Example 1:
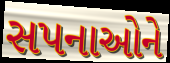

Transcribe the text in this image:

સપનાઓને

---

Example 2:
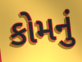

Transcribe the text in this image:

કોમનું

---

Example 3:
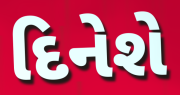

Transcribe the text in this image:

દિનેશે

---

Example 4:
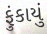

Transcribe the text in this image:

ફુંકાયું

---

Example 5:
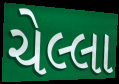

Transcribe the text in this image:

ચેલ્લા